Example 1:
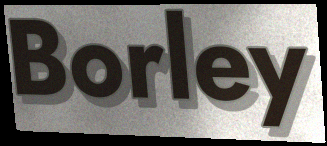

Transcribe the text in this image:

Borley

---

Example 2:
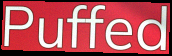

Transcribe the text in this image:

Puffed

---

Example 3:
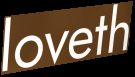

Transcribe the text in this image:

loveth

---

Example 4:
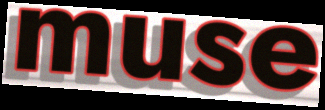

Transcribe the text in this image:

muse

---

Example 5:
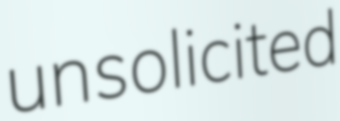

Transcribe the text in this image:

unsolicited